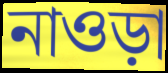
নাওড়া